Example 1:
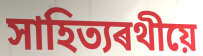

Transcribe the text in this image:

সাহিত্যৰথীয়ে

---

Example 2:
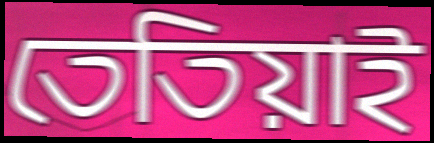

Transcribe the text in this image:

তেতিয়াই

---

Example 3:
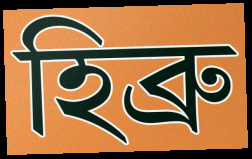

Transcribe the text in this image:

হিব্ৰু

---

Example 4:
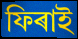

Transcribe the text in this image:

ফিৰাই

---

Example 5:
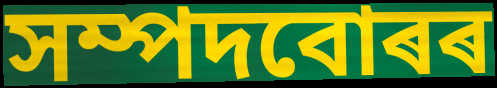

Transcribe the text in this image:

সম্পদবোৰৰ